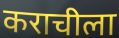
कराचीला